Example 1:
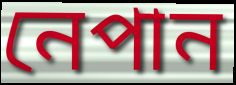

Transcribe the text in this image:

নেপান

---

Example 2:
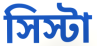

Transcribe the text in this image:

সিস্টা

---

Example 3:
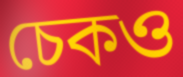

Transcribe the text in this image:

চেকও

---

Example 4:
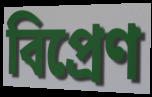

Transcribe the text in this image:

বিপ্রেণ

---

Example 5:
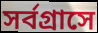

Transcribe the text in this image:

সর্বগ্রাসে